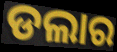
ଡଲାର